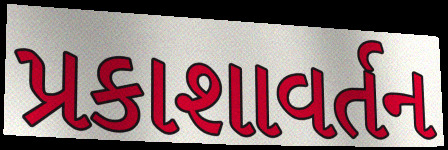
પ્રકાશાવર્તન